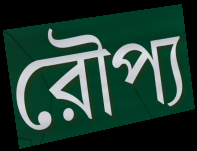
রৌপ্য